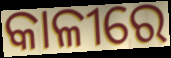
କାଳୀରେ